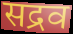
सद्रव